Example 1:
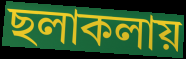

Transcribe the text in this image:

ছলাকলায়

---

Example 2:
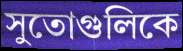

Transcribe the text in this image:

সুতোগুলিকে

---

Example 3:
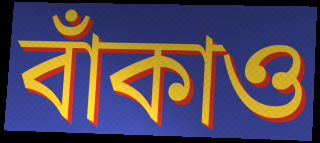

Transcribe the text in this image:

বাঁকাও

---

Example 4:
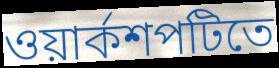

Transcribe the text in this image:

ওয়ার্কশপটিতে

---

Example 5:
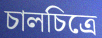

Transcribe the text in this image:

চালচিত্রে